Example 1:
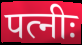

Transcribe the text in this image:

पत्नीः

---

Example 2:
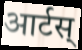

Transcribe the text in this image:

आर्टस्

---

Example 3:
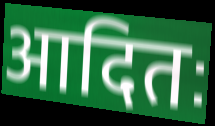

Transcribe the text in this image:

आदितः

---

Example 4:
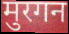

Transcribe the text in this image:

मुरगन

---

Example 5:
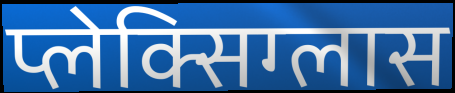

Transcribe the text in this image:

प्लेक्सिग्लास